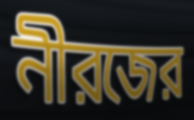
নীরজের